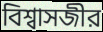
বিশ্বাসজীর